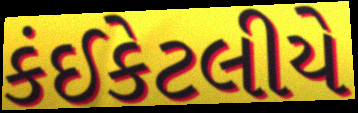
કંઈકેટલીયે